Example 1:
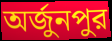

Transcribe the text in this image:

অর্জুনপুর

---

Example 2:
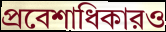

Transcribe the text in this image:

প্রবেশাধিকারও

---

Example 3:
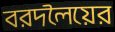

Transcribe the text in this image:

বরদলৈয়ের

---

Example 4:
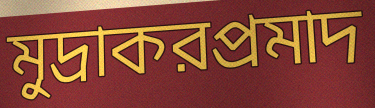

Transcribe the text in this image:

মুদ্রাকরপ্রমাদ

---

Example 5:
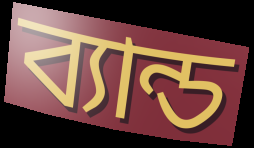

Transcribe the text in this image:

ব্যান্ড